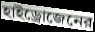
হাইড্রোজেনের